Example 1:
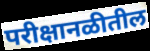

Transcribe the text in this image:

परीक्षानळीतील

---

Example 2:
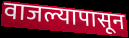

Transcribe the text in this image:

वाजल्यापासून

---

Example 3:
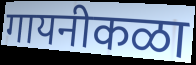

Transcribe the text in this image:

गायनीकळा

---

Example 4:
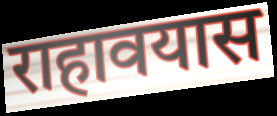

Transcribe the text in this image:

राहावयास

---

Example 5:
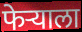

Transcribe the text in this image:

फेऱ्याला